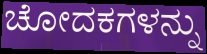
ಚೋದಕಗಳನ್ನು